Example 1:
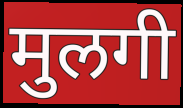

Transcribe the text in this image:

मुलगी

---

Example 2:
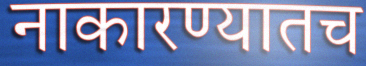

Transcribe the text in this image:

नाकारण्यातच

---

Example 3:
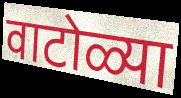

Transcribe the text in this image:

वाटोळ्या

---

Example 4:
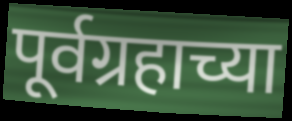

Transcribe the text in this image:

पूर्वग्रहाच्या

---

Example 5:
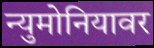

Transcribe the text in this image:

न्युमोनियावर